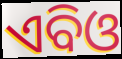
ଏବିଓ